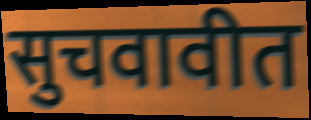
सुचवावीत